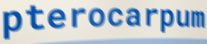
pterocarpum